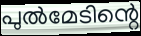
പുൽമേടിന്റെ